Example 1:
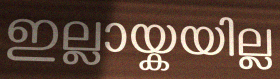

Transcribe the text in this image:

ഇല്ലായ്കയില്ല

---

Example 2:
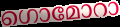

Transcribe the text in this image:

ഗൊമോറാ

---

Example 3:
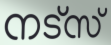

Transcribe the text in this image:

നട്സ്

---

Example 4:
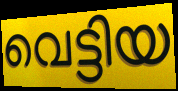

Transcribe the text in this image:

വെട്ടിയ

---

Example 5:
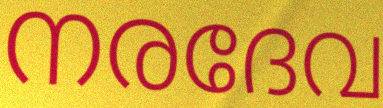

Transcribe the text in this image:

നരദേവ